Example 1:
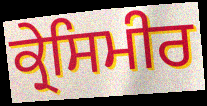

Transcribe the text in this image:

ਕ੍ਰੇਸਿਮੀਰ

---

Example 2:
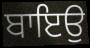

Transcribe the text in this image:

ਬਾਇਉ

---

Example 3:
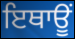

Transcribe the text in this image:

ਇਥਾਊਂ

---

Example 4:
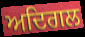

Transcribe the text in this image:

ਅਦਿਗਲ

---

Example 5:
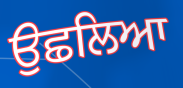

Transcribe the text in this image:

ਉਛਲਿਆ